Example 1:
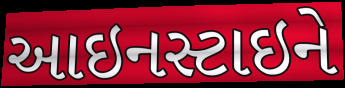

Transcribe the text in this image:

આઇનસ્ટાઇને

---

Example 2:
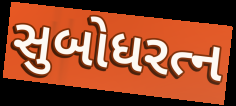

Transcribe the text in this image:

સુબોધરત્ન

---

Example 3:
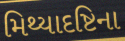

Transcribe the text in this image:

મિથ્યાદષ્ટિના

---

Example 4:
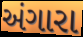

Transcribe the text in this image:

અંગારા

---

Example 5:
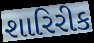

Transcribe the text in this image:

શારિરીક